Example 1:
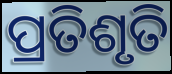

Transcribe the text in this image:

ପ୍ରତିଶୃତି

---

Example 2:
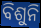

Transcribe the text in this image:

ବିଶୁନି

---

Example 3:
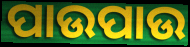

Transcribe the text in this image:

ପାଉପାଉ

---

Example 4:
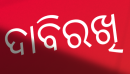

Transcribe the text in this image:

ଦାବିରଖି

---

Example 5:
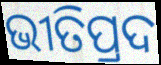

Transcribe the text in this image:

ଭୀତିପ୍ରଦ